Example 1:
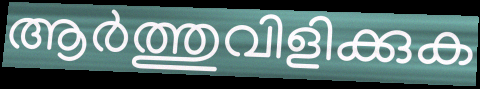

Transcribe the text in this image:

ആർത്തുവിളിക്കുക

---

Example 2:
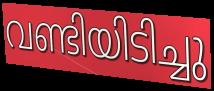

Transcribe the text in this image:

വണ്ടിയിടിച്ചു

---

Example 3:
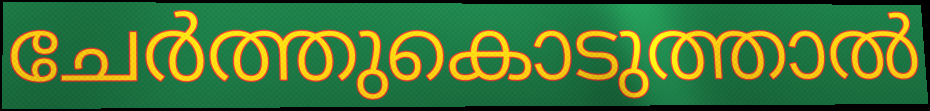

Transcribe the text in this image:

ചേർത്തുകൊടുത്താൽ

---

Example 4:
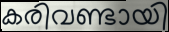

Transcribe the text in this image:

കരിവണ്ടായി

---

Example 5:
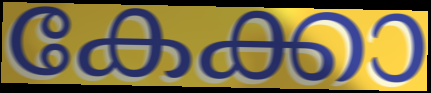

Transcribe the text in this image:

കേക്കാ